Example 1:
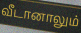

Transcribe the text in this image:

வீடானாலும்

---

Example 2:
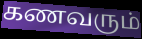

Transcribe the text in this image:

கணவரும்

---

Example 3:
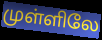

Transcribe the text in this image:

முள்ளிலே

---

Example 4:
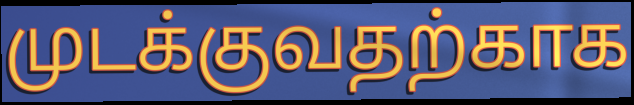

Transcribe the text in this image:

முடக்குவதற்காக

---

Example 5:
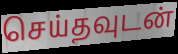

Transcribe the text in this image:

செய்தவுடன்